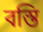
বস্তি